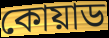
কোয়াড